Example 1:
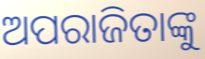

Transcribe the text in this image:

ଅପରାଜିତାଙ୍କୁ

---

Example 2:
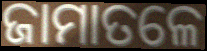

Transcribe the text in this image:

ଜାମାତଳେ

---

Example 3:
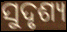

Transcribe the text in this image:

ସୁଦୃଶ୍ଯ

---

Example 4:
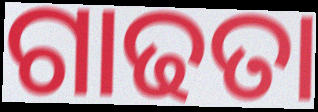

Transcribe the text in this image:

ଗାଢତା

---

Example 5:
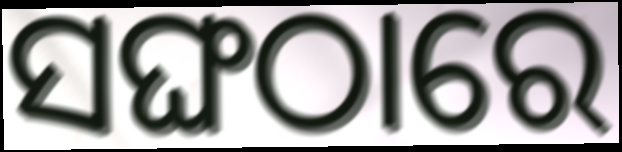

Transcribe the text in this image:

ସଙ୍ଘଠାରେ